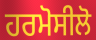
ਹਰਮੋਸੀਲੋ